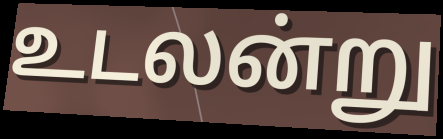
உடலன்று